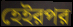
হেইরপর